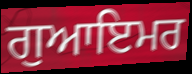
ਗੁਆਇਮਰ